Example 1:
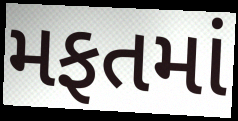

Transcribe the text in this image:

મફતમાં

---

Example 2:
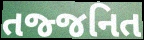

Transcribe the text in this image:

તજ્જનિત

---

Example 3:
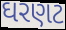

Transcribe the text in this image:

ઘરણટ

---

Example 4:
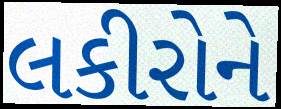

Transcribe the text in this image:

લકીરોને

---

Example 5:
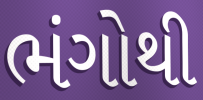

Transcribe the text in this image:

ભંગોથી